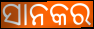
ସାନକର